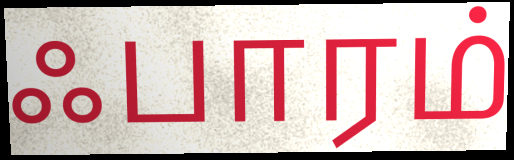
ஃபாரம்